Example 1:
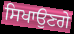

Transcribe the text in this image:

ਸਿਖਾਉਣਗੇ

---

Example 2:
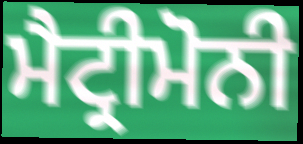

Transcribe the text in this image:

ਮੈਟ੍ਰੀਮੋਨੀ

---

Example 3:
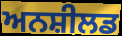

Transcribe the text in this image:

ਅਨਸ਼ੀਲਡ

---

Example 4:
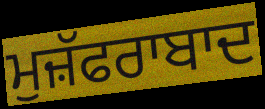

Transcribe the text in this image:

ਮੁਜ਼ੱਫਰਾਬਾਦ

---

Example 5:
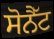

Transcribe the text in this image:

ਸੋਨੈੱਟ